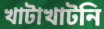
খাটাখাটনি